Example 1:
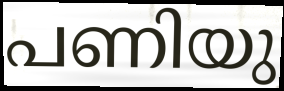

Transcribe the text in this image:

പണിയു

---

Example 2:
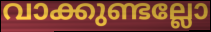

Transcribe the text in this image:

വാക്കുണ്ടല്ലോ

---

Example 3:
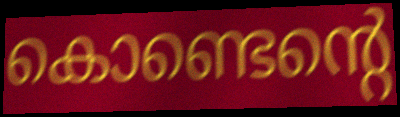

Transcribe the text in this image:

കൊണ്ടെന്റെ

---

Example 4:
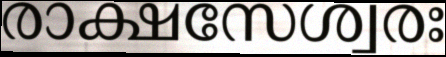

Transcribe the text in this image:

രാക്ഷസേശ്വരഃ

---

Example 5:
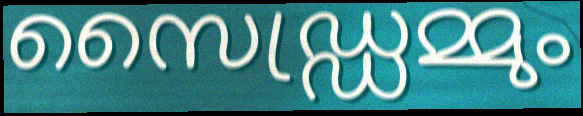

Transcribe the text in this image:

സൈഡ്ഡ്രമ്മും